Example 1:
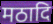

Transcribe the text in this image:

मठादि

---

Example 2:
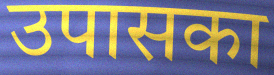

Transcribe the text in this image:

उपासका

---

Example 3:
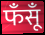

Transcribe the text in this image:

फँसूँ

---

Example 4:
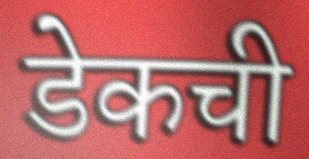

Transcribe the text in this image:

डेकची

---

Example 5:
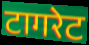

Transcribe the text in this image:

टागरेट